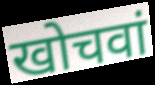
खोचवां